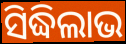
ସିଦ୍ଧିଲାଭ